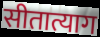
सीतात्याग